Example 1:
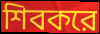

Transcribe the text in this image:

শিবকরে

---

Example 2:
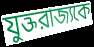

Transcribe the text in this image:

যুক্তরাজ্যকে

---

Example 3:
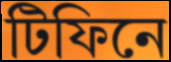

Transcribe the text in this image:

টিফিনে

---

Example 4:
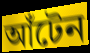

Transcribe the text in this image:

আঁটেন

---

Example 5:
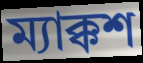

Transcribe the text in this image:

ম্যাক্কশ